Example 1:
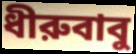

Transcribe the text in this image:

ধীরুবাবু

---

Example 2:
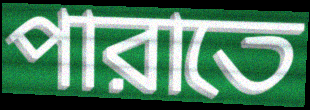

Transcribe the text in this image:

পারাতে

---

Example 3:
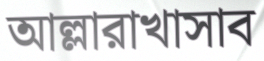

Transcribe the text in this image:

আল্লারাখাসাব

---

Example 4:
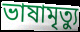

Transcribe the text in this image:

ভাষামৃত্যু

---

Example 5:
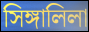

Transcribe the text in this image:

সিঙ্গালিলা